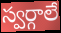
స్వర్గాలే